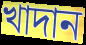
খাদান